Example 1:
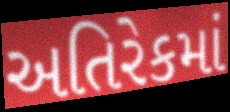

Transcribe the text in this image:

અતિરેકમાં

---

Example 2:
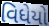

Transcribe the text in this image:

વિધેયો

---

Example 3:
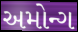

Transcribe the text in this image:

અમોન્ગ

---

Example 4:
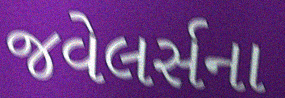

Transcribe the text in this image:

જવેલર્સના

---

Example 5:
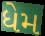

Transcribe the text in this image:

ધેમ